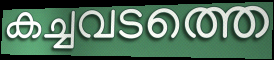
കച്ചവടത്തെ